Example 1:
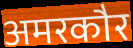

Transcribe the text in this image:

अमरकौर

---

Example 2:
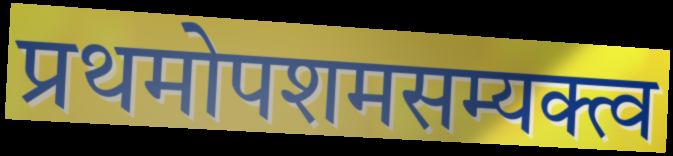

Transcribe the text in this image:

प्रथमोपशमसम्यक्त्व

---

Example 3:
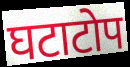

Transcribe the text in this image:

घटाटोप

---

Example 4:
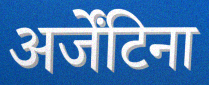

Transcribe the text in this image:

अर्जेंटिना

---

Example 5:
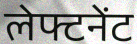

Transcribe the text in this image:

लेफ्टनेंट